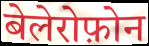
बेलेरोफ़ोन